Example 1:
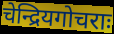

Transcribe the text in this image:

चेन्द्रियगोचराः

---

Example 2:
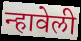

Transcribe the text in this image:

न्हावेली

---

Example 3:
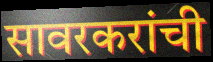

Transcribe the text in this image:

सावरकरांची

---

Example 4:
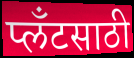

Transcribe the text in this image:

प्लँटसाठी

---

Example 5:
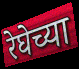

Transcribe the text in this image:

रेघेच्या